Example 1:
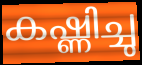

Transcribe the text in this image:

കഷ്ണിച്ചു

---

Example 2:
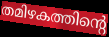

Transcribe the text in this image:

തമിഴകത്തിന്റെ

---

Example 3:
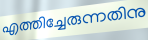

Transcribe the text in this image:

എത്തിച്ചേരുന്നതിനു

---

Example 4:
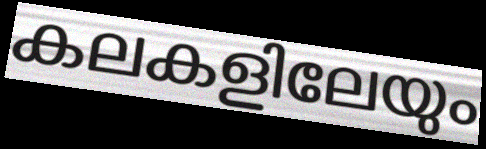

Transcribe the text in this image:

കലകളിലേയും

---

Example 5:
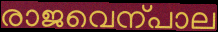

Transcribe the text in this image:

രാജവെന്പാല